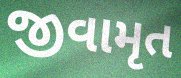
જીવામૃત